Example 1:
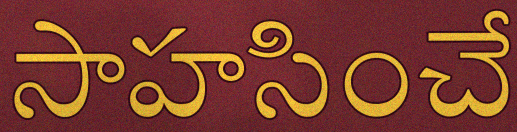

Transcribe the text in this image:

సాహసించే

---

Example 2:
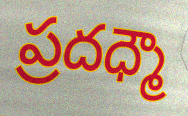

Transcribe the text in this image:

ప్రదధ్మౌ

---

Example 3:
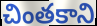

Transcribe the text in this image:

చింతకాని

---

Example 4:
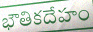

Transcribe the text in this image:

భౌతికదేహం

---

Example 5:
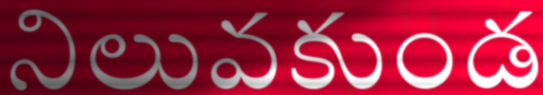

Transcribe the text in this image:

నిలువకుండ